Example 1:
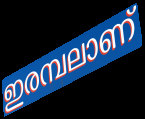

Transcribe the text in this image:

ഇരമ്പലാണ്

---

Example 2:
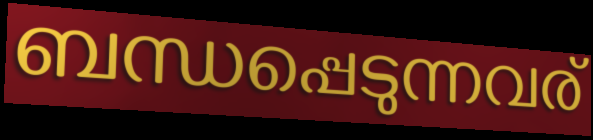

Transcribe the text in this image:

ബന്ധപ്പെടുന്നവര്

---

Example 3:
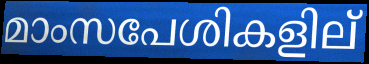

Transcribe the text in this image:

മാംസപേശികളില്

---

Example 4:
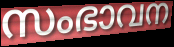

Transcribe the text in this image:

സംഭാവന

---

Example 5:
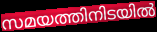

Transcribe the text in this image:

സമയത്തിനിടയിൽ